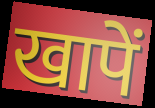
खापें